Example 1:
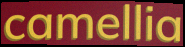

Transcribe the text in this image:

camellia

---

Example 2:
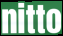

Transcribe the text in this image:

nitto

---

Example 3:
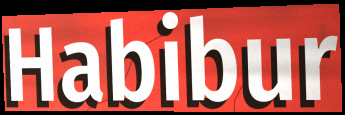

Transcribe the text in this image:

Habibur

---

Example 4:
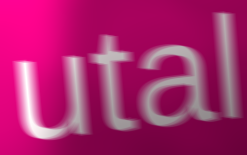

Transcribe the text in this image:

utal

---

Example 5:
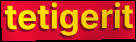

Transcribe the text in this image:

tetigerit